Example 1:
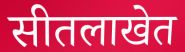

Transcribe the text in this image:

सीतलाखेत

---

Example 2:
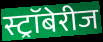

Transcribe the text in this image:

स्ट्रॉबेरीज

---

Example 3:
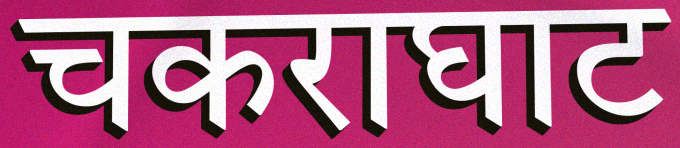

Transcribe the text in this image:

चकराघाट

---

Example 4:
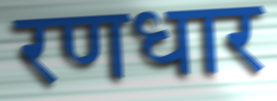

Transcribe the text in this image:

रणधार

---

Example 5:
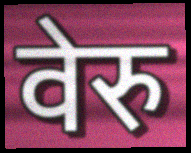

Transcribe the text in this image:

वेरु